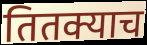
तितक्याच